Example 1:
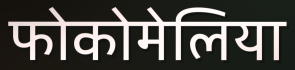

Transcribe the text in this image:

फोकोमेलिया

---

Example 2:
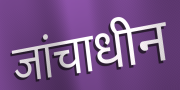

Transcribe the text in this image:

जांचाधीन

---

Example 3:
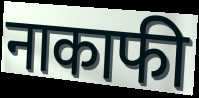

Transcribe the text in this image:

नाकाफी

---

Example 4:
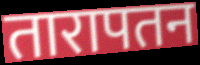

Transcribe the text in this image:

तारापतन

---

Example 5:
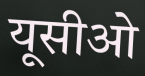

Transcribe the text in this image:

यूसीओ